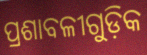
ପ୍ରଶାବଳୀଗୁଡ଼ିକ